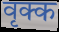
वृक्क